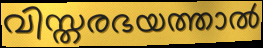
വിസ്തരഭയത്താൽ